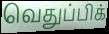
வெதுப்பிக்